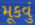
મૂકવું